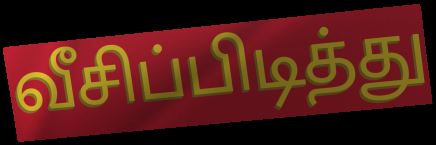
வீசிப்பிடித்து